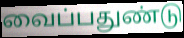
வைப்பதுண்டு